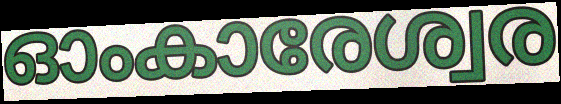
ഓംകാരേശ്വര